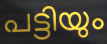
പട്ടിയും